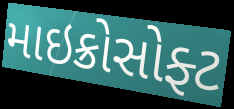
માઇક્રોસોફ્ટ